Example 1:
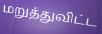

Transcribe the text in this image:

மறுத்துவிட்ட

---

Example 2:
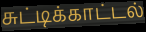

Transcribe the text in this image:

சுட்டிக்காட்டல்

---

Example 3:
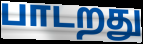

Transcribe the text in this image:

பாடறது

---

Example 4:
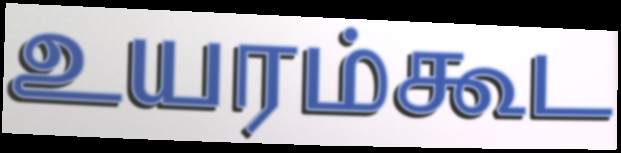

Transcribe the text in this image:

உயரம்கூட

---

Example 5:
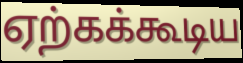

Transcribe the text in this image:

ஏற்கக்கூடிய